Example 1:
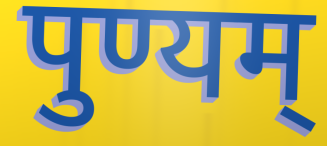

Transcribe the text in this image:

पुण्यम्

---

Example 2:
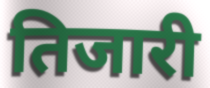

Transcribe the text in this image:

तिजारी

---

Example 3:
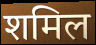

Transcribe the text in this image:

शमिल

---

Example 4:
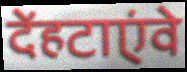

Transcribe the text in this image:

देंहटाएंवे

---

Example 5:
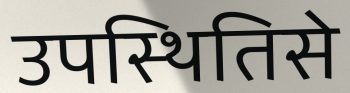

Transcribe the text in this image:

उपस्थितिसे